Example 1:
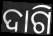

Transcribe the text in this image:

ଦାଗି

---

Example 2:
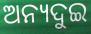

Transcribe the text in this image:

ଅନ୍ୟଦୁଇ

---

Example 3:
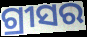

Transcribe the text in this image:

ଗ୍ରୀସର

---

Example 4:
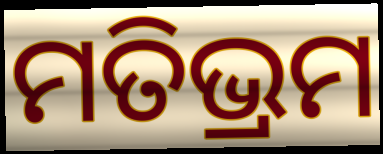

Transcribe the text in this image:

ମତିଭ୍ରମ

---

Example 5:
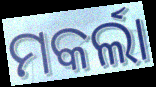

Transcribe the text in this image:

ମକର୍ଲା